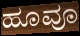
ಹೂವೂ